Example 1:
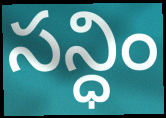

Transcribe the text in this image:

సన్ధిం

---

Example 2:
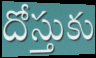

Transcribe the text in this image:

దోస్తుకు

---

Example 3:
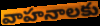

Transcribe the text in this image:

వాహనాలకు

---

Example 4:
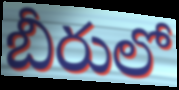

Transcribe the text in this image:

బీరులో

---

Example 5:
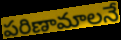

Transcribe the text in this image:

పరిణామాలనే